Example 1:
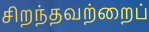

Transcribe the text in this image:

சிறந்தவற்றைப்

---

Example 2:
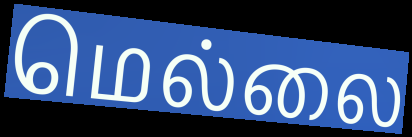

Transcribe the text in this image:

மெல்லை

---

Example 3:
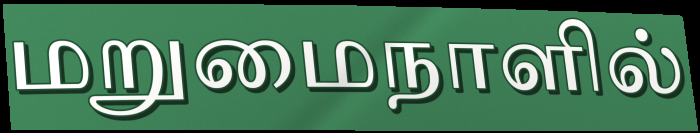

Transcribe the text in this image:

மறுமைநாளில்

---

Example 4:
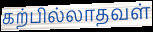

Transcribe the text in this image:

கற்பில்லாதவள்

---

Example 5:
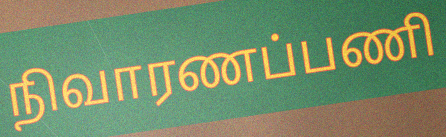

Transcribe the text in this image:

நிவாரணப்பணி